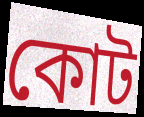
কোট